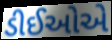
ડીઈઓએ